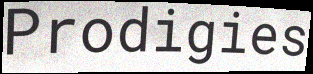
Prodigies